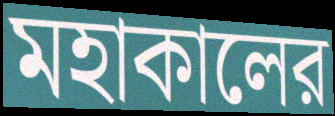
মহাকালের